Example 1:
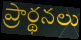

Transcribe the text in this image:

ప్రార్థనలు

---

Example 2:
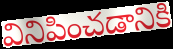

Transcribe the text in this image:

వినిపించడానికి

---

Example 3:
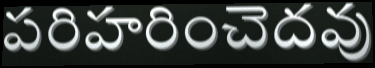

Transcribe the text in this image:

పరిహరించెదవు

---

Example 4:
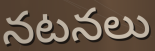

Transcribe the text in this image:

నటనలు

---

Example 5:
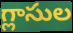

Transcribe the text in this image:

గ్లాసుల